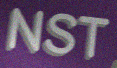
NST